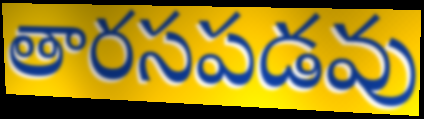
తారసపడవు